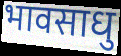
भावसाधु